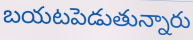
బయటపెడుతున్నారు